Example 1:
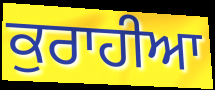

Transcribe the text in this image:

ਕੁਰਾਹੀਆ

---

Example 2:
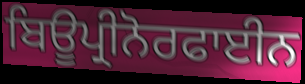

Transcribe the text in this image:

ਬਿਊਪ੍ਰੀਨੋਰਫਾਈਨ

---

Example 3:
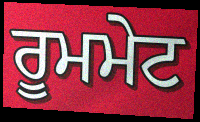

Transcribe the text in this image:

ਰੂਮਮੇਟ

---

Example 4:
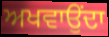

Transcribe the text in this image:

ਅਖਵਾਉਂਦਾ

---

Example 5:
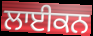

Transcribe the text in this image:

ਲਾਈਕਨ